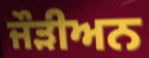
ਜੌੜੀਅਨ